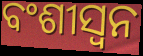
ବଂଶୀସ୍ୱନ